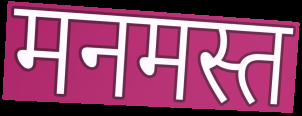
मनमस्त